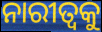
ନାରୀତ୍ୱକୁ